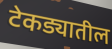
टेकड्यातील